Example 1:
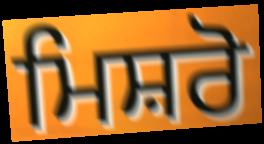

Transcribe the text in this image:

ਮਿਸ਼ਰੋ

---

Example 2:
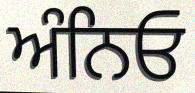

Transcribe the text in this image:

ਅੰਨਿਓ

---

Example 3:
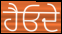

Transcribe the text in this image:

ਹੈਓਦੇ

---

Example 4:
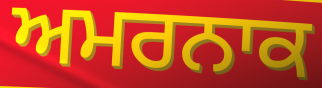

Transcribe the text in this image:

ਅਮਰਨਾਕ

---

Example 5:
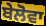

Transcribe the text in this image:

ਬੇਲੋਵਾ